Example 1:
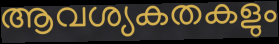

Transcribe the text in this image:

ആവശ്യകതകളും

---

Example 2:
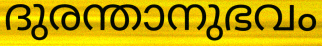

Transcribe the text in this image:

ദുരന്താനുഭവം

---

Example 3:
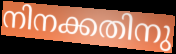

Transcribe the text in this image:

നിനക്കതിനു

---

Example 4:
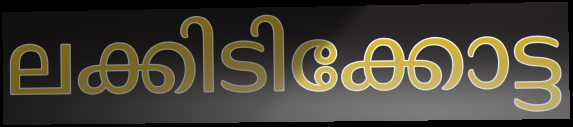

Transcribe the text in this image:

ലക്കിടിക്കോട്ട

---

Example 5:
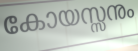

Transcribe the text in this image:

കോയസ്സനും